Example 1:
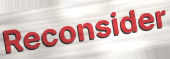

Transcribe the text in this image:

Reconsider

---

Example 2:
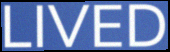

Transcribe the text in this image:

LIVED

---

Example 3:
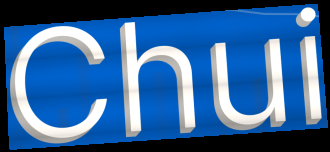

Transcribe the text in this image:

Chui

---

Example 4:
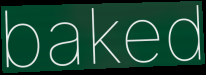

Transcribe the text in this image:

baked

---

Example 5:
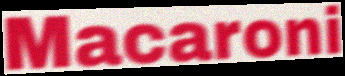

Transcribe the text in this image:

Macaroni